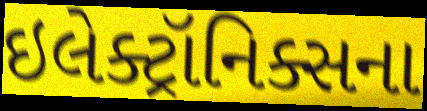
ઇલેક્ટ્રૉનિક્સના